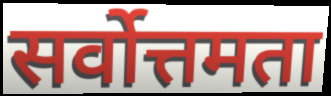
सर्वोत्तमता